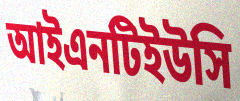
আইএনটিইউসি